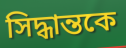
সিদ্ধান্তকে